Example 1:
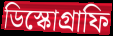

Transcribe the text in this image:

ডিস্কোগ্রাফি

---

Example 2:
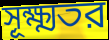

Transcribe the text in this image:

সূক্ষ্মতর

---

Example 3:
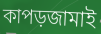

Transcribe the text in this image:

কাপড়জামাই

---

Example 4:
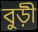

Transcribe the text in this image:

বুড়ী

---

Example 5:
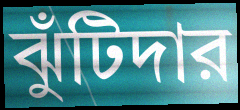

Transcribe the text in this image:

ঝুঁটিদার